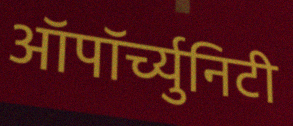
ऑपॉर्च्युनिटी